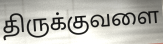
திருக்குவளை